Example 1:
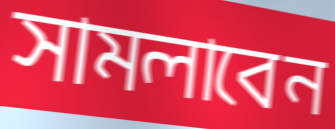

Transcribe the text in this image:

সামলাবেন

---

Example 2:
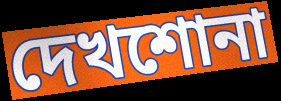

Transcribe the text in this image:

দেখশোনা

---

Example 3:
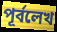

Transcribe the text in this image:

পূর্বলেখ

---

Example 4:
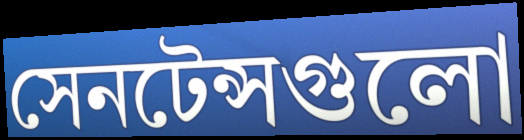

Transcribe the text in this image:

সেনটেন্সগুলো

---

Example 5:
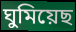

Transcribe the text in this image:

ঘুমিয়েছ